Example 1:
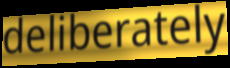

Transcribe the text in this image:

deliberately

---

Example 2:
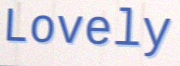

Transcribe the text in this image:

Lovely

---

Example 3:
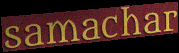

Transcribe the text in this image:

samachar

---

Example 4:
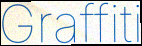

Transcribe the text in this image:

Graffiti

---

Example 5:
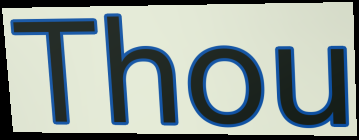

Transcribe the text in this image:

Thou